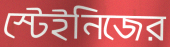
স্টেইনিজের